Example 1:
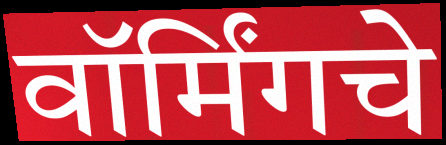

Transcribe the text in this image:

वॉर्मिंगचे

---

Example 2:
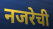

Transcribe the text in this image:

नजरेची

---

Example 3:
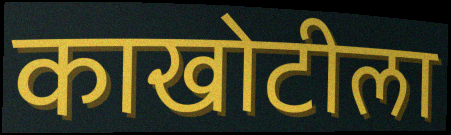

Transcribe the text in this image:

काखोटीला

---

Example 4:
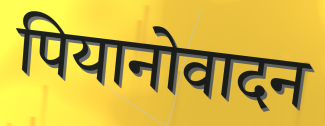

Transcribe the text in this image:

पियानोवादन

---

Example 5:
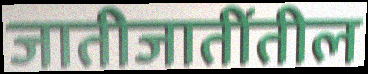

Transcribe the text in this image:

जातीजातींतील